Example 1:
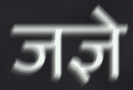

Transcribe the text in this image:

जज्ञे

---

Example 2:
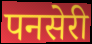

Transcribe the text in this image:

पनसेरी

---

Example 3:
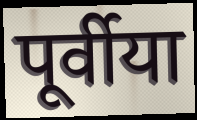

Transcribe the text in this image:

पूर्वीया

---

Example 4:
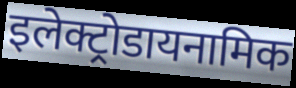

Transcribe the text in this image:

इलेक्ट्रोडायनामिक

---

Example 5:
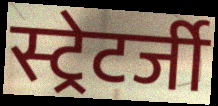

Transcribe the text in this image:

स्ट्रेटर्जी